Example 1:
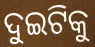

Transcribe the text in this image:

ଦୁଇଟିକୁ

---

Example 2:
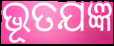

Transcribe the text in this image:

ଭୂତଯଜ୍ଞ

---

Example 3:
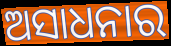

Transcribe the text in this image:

ଅସାଧନାର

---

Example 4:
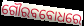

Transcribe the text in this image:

ଗୌରବବୋଧରେ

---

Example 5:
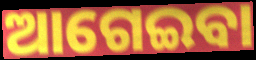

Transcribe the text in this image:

ଆଗେଇବା